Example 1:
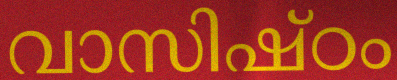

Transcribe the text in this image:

വാസിഷ്ഠം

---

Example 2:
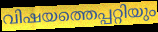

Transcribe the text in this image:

വിഷയത്തെപ്പറ്റിയും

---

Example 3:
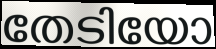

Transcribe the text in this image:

തേടിയോ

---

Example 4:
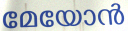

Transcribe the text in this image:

മേയോൻ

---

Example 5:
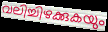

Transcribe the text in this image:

വലിച്ചിഴക്കുകയും